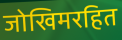
जोखिमरहित